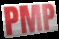
PMP